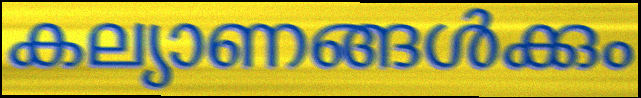
കല്യാണങ്ങൾക്കും